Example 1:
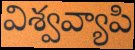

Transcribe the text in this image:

విశ్వవ్యాపి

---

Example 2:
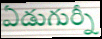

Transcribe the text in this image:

ఏడుగుర్నీ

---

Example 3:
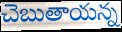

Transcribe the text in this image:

చెబుతాయన్న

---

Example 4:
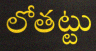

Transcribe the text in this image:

లోతట్టు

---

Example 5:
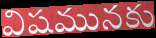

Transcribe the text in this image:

విషమునకు